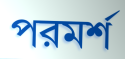
পরমর্শ